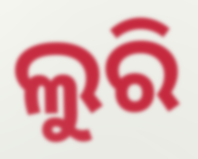
ଲୁରି